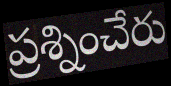
ప్రశ్నించేరు